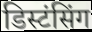
डिस्टंसिंग